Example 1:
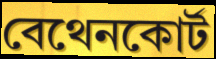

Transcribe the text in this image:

বেথেনকোর্ট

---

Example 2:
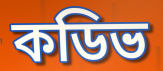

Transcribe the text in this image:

কডিভ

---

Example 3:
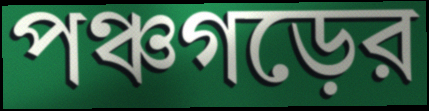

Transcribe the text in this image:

পঞ্চগড়ের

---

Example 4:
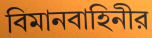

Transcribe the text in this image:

বিমানবাহিনীর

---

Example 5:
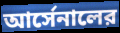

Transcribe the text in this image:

আর্সেনালের